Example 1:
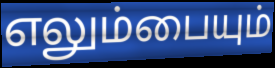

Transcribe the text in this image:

எலும்பையும்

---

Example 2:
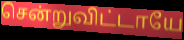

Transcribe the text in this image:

சென்றுவிட்டாயே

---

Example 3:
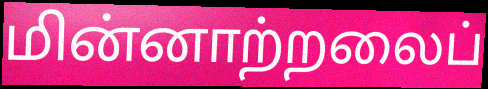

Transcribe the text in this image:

மின்னாற்றலைப்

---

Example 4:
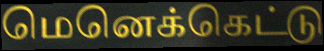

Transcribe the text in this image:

மெனெக்கெட்டு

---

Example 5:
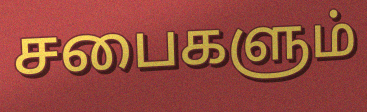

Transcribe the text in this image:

சபைகளும்